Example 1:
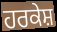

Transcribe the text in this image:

ਹਰਕੇਸ਼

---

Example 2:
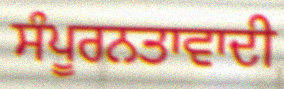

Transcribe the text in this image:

ਸੰਪੂਰਨਤਾਵਾਦੀ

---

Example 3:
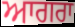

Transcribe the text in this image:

ਆਗਰਾ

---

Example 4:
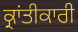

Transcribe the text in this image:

ਕ੍ਰਾਂਤੀਕਾਰੀ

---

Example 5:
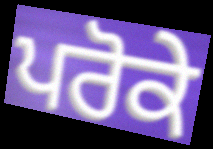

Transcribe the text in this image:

ਪਰੋਕੇ